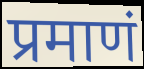
प्रमाणं